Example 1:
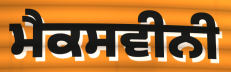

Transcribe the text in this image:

ਮੈਕਸਵੀਨੀ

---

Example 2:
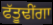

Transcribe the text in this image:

ਫੱਤੂਢੀਂਗਾ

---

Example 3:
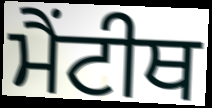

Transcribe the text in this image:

ਮੈਂਟੀਥ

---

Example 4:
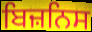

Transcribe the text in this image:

ਬਿਜ਼ਨਿਸ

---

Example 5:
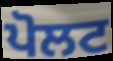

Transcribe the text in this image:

ਪੋਲਟ